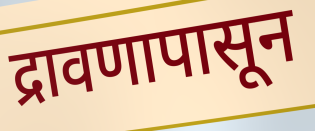
द्रावणापासून